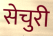
सेचुरी